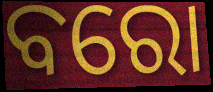
ବରୋ